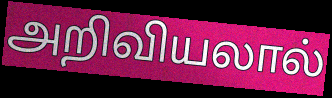
அறிவியலால்